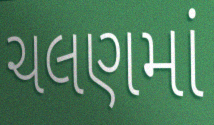
ચલણમાં